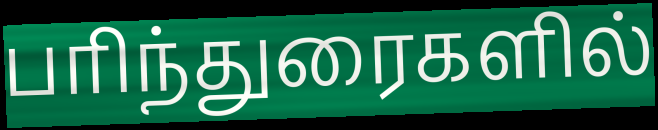
பரிந்துரைகளில்